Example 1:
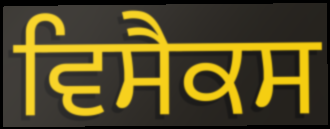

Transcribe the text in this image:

ਵਿਸੈਕਸ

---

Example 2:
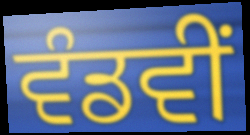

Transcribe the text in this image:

ਵੰਡਵੀਂ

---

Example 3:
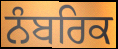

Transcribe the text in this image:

ਨੰਬਰਿਕ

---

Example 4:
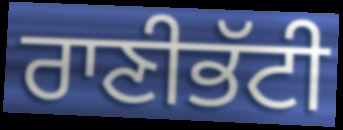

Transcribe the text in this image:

ਰਾਣੀਭੱਟੀ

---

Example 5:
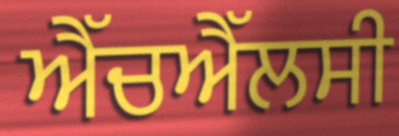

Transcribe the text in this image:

ਐੱਚਐੱਲਸੀ